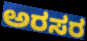
ಅರಸರ